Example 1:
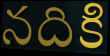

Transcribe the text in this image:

నదికి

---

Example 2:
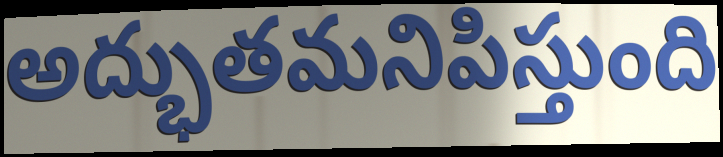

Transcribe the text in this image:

అద్భుతమనిపిస్తుంది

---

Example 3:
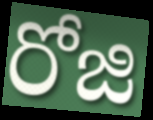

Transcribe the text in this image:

రోజి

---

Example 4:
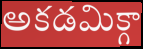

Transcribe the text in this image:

అకడమిక్గా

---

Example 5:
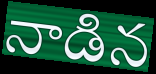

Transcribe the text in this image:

నాడిన